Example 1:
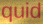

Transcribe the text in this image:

quid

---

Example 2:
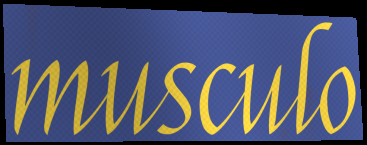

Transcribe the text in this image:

musculo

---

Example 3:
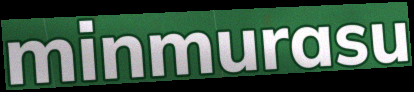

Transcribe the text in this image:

minmurasu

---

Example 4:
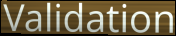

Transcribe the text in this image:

Validation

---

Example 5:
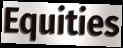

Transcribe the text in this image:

Equities